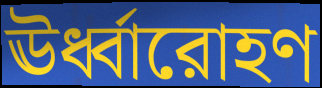
ঊর্ধ্বারোহণ